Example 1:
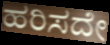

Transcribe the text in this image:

ಹರಿಸದೇ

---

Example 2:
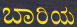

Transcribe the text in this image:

ಬಾರಿಯ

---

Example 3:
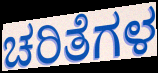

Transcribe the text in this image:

ಚರಿತೆಗಳ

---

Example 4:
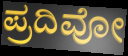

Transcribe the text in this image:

ಪ್ರದಿವೋ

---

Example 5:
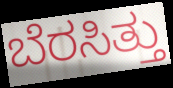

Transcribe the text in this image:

ಬೆರಸಿತ್ತು